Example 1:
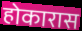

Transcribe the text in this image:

होकारास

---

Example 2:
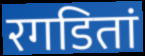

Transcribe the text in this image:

रगडितां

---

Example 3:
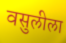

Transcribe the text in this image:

वसुलीला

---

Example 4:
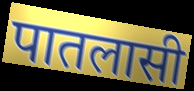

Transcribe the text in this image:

पातलासी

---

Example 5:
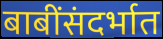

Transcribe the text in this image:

बाबींसंदर्भात